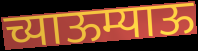
च्याऊम्याऊ